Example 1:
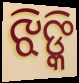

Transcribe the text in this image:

ଝିଙ୍କି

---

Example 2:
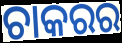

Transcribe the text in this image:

ଚାକରର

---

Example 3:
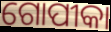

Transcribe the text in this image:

ଗୋପୀକା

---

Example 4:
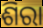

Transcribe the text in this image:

ଶିରା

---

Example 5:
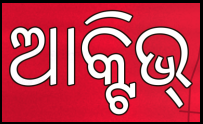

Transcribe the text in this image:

ଆକ୍ଟିଭ୍